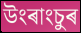
উংৰাংচুৰ